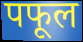
पफूल